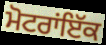
ਮੋਟਰਾਂਇੱਕ